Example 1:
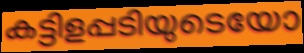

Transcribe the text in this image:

കട്ടിളപ്പടിയുടെയോ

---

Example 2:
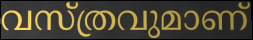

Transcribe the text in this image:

വസ്ത്രവുമാണ്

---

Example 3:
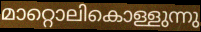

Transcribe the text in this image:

മാറ്റൊലികൊള്ളുന്നു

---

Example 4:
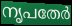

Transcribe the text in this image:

നൃപതേർ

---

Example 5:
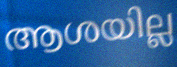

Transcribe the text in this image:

ആശയില്ല